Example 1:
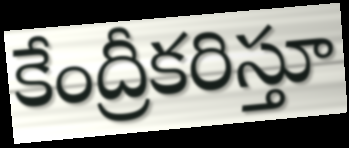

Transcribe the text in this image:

కేంద్రీకరిస్తూ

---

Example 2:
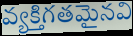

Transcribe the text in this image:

వ్యక్తిగతమైనవి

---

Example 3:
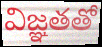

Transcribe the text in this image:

విజ్ఞతతో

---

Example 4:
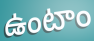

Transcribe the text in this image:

ఉంటాం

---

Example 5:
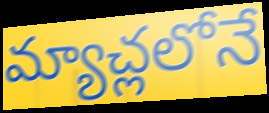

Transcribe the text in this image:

మ్యాచ్లలోనే